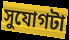
সুযোগটা